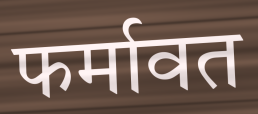
फर्मावत